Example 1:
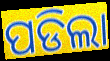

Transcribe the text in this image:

ପଡିଲା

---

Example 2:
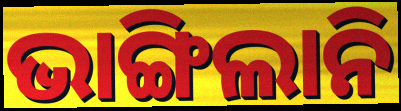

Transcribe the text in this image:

ଭାଙ୍ଗିଲାନି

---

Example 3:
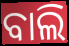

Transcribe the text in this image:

ବାଲି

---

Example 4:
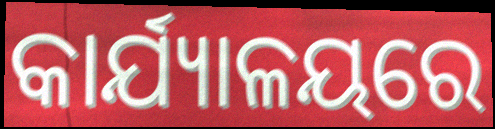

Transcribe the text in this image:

କାର୍ଯ୍ୟାଳୟରେ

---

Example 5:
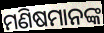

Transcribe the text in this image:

ମଣିଷମାନଙ୍କ